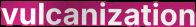
vulcanization